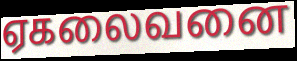
ஏகலைவனை